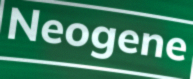
Neogene